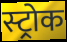
स्‍ट्रोक